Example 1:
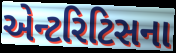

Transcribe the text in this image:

એન્ટરિટિસના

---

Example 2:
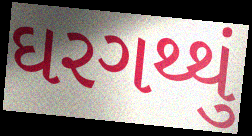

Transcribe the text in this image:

ઘરગથ્થું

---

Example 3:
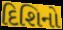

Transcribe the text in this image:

દિશિનો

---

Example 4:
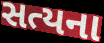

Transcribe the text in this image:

સત્યના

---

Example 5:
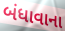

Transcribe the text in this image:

બંધાવાના